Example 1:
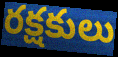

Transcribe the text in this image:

రక్షకులు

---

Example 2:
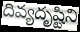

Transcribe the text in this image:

దివ్యదృష్టిని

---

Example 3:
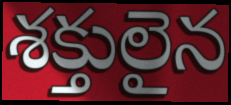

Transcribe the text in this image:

శక్తులైన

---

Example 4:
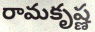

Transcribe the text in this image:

రామకృష్ణ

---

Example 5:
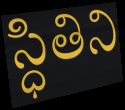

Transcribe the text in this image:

స్ధితిని